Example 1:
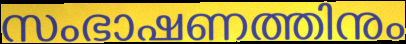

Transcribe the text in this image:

സംഭാഷണത്തിനും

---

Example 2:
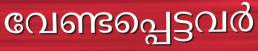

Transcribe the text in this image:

വേണ്ടപ്പെട്ടവർ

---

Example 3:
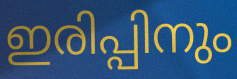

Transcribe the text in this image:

ഇരിപ്പിനും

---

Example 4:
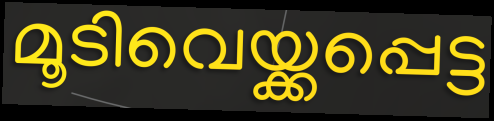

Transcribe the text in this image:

മൂടിവെയ്ക്കപ്പെട്ട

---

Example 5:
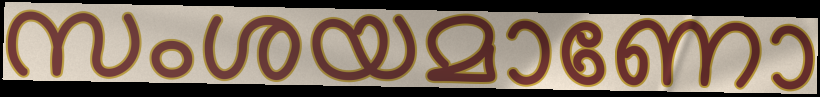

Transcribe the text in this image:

സംശയമാണോ